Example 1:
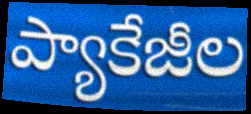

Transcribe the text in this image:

ప్యాకేజీల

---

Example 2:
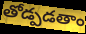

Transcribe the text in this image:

తోడ్పడతాం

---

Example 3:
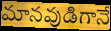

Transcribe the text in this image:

మానవుడిగానే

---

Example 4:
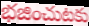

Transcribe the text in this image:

భజించుటకు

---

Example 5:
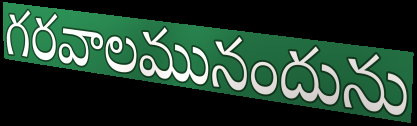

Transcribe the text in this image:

గరవాలమునందును